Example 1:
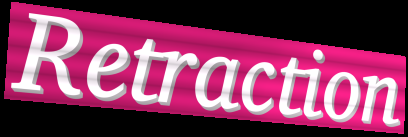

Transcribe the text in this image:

Retraction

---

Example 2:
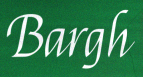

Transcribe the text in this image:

Bargh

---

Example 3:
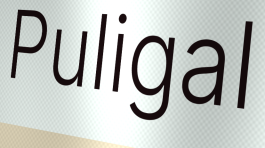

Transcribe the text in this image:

Puligal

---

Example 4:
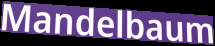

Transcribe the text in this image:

Mandelbaum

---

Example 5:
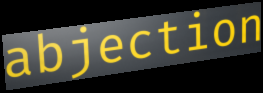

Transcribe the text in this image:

abjection